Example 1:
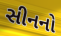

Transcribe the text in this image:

સીનનો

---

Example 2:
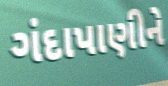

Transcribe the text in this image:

ગંદાપાણીને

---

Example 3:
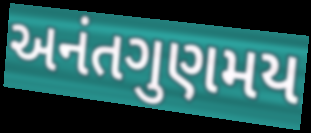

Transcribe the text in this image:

અનંતગુણમય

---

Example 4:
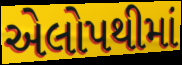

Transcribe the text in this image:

એલોપથીમાં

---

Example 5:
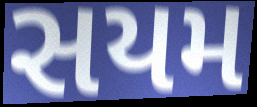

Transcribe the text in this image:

સયમ